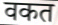
वकत